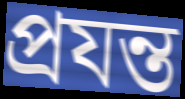
প্রযন্ত